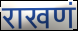
राखणं